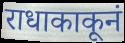
राधाकाकूनं